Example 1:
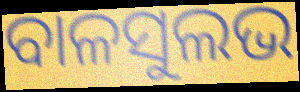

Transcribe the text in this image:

ବାଳସୁଲଭ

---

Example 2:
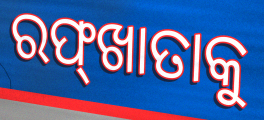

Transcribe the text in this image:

ରଫ୍‌ଖାତାକୁ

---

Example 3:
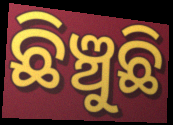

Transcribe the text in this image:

ଛିଞ୍ଚୁଛି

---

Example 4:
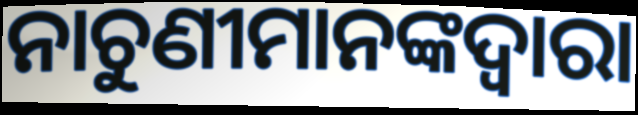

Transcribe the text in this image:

ନାଚୁଣୀମାନଙ୍କଦ୍ୱାରା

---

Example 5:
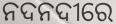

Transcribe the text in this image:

ନଦନଦୀରେ